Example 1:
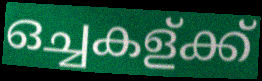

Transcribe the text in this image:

ഒച്ചകള്ക്ക്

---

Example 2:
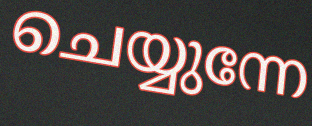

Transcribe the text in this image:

ചെയ്യുന്നേ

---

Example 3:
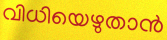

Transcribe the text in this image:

വിധിയെഴുതാൻ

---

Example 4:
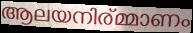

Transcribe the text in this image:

ആലയനിര്മ്മാണം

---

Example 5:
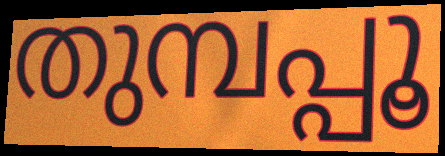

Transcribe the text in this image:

തുമ്പപ്പൂ